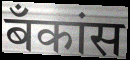
बँकांस